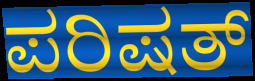
ಪರಿಷತ್